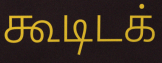
கூடிடக்